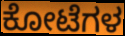
ಕೋಟೆಗಳ